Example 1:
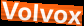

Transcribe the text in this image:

Volvox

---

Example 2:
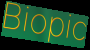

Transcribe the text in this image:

Biopic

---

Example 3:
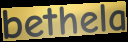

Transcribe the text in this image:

bethela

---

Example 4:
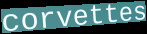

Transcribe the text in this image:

corvettes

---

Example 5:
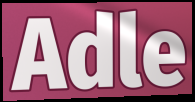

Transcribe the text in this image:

Adle